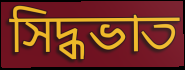
সিদ্ধভাত